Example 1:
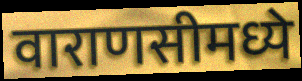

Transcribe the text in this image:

वाराणसीमध्ये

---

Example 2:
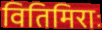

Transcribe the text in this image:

वितिमिराः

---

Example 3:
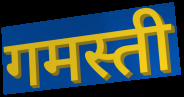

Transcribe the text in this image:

गमस्ती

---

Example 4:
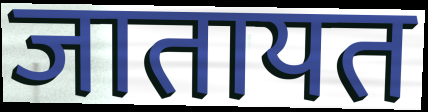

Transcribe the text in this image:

जातायत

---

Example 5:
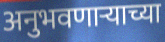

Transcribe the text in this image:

अनुभवणार्‍याच्या